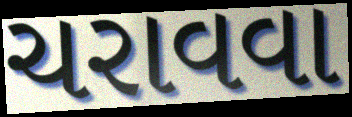
ચરાવવા